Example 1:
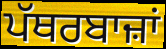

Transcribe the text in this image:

ਪੱਥਰਬਾਜ਼ਾਂ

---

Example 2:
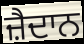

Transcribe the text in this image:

ਜ਼ੈਦਾਨ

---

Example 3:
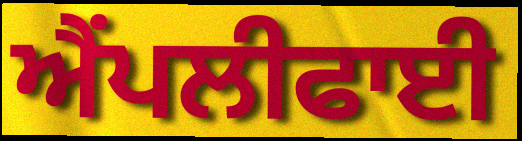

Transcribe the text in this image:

ਐਂਪਲੀਫਾਈ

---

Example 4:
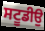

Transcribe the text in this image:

ਸਟੂਡੀਉ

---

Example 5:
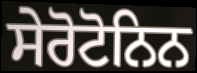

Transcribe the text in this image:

ਸੇਰੋਟੋਨਿਨ